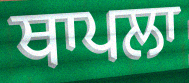
ਥਾਪਲਾ